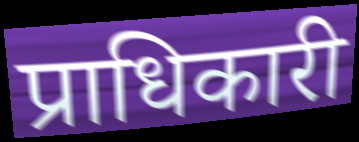
प्राधिकारी